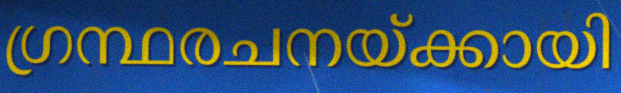
ഗ്രന്ഥരചനയ്ക്കായി